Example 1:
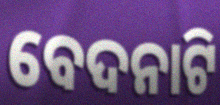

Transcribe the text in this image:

ବେଦନାଟି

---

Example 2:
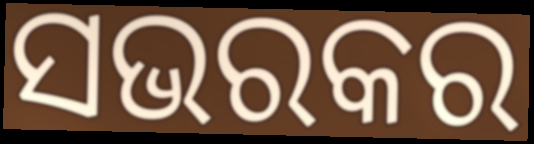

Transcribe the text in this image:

ସଭରକର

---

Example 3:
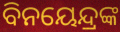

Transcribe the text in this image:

ବିନୟେନ୍ଦ୍ରଙ୍କ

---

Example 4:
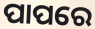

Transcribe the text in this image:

ପାପରେ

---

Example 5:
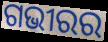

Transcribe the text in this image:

ଗଭୀରର